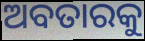
ଅବତାରକୁ